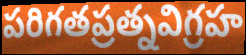
పరిగతప్రత్నవిగ్రహ